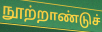
நூற்றாண்டுச்